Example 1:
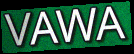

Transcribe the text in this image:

VAWA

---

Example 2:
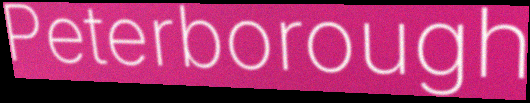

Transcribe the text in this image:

Peterborough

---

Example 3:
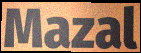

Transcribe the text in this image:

Mazal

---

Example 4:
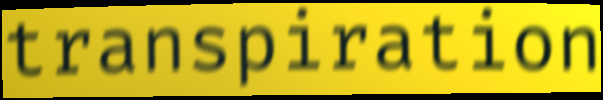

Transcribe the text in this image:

transpiration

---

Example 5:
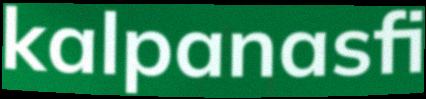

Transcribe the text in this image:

kalpanasfi